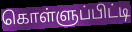
கொள்ளுப்பிட்டி